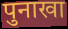
पुनाखा